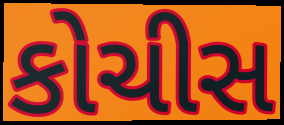
કોચીસ